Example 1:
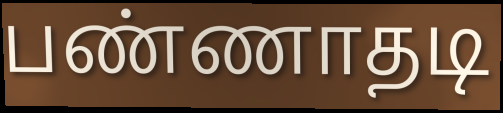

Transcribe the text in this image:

பண்ணாதடி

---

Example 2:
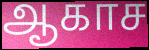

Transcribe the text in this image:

ஆகாச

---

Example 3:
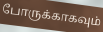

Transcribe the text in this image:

போருக்காகவும்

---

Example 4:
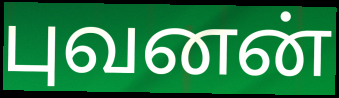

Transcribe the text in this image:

புவனன்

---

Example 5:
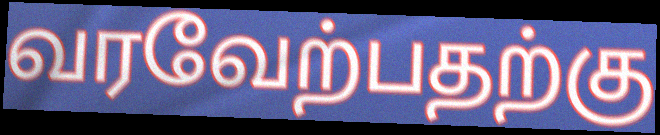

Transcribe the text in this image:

வரவேற்பதற்கு